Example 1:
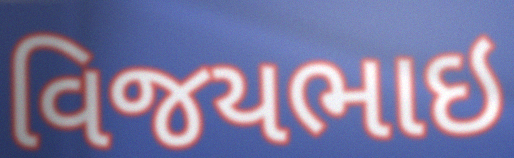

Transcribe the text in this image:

વિજયભાઇ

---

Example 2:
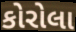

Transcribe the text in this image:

કોરોલા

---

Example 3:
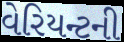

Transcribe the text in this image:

વેરિયન્ટની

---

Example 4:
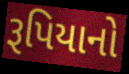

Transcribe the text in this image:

રૂપિયાનો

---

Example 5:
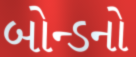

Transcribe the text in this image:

બોન્ડનો